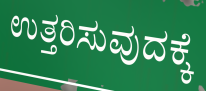
ಉತ್ತರಿಸುವುದಕ್ಕೆ